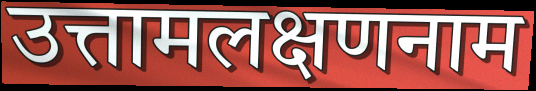
उत्तामलक्षणनाम